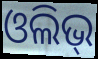
ଓଲିଭ୍